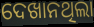
ଦେଖାନଥିଲା